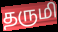
தருமி